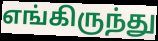
எங்கிருந்து